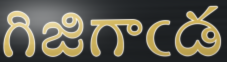
గిజిగాఁడ